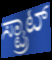
ಸ್ಟ್ರಾಟ್